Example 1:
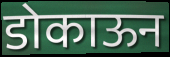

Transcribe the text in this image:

डोकाऊन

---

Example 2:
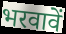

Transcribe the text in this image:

भरवावें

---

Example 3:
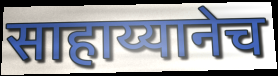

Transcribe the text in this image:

साहाय्यानेच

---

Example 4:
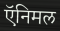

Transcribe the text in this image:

ऍनिमल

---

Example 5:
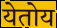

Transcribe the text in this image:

येतोय